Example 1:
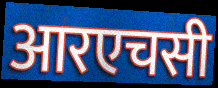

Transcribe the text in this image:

आरएचसी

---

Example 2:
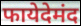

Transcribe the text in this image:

फायेदेमंद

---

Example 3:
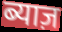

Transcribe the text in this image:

ब्याज़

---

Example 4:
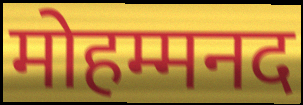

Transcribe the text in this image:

मोहम्मनद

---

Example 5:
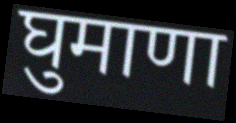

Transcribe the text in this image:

घुमाणा